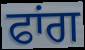
ਫਾਂਗ